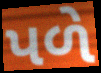
પળે